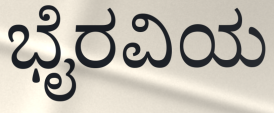
ಭೈರವಿಯ